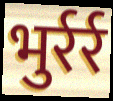
भुर्रर्र